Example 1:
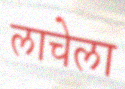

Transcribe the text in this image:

लाचेला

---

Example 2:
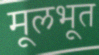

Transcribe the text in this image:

मूलभूत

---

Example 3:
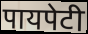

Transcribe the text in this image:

पायपेटी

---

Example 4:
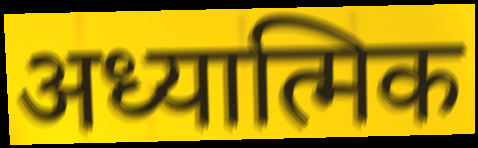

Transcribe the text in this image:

अध्यात्मिक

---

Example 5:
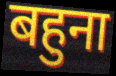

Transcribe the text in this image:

बहुना